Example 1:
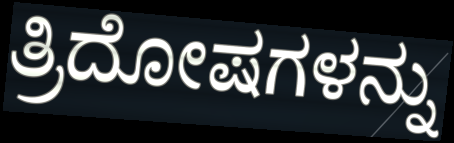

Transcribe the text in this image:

ತ್ರಿದೋಷಗಳನ್ನು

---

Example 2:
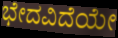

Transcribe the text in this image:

ಭೇದವಿದೆಯೇ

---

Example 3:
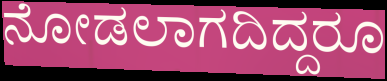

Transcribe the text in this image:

ನೋಡಲಾಗದಿದ್ದರೂ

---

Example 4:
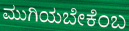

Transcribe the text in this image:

ಮುಗಿಯಬೇಕೆಂಬ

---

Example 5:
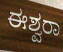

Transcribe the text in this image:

ಈಶ್ವರಾ